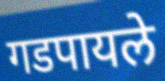
गडपायले